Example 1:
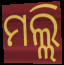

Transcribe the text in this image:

ମଲ୍ଲି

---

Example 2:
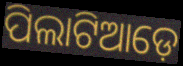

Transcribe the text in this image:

ପିଲାଟିଆଡ଼େ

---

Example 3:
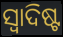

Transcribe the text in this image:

ସ୍ବାଦିଷ୍ଟ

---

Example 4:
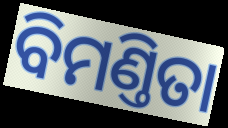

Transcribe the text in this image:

ବିମଣ୍ତିତା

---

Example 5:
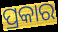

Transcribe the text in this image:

ପ୍ରକାର